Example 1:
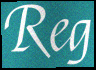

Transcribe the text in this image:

Reg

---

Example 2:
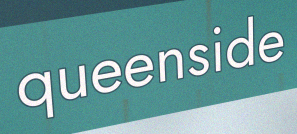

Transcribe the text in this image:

queenside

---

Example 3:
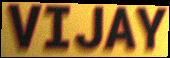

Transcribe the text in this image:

VIJAY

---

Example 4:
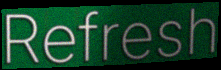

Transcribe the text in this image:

Refresh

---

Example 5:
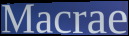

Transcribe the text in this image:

Macrae